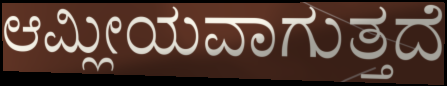
ಆಮ್ಲೀಯವಾಗುತ್ತದೆ